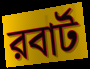
রবার্ট